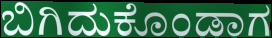
ಬಿಗಿದುಕೊಂಡಾಗ